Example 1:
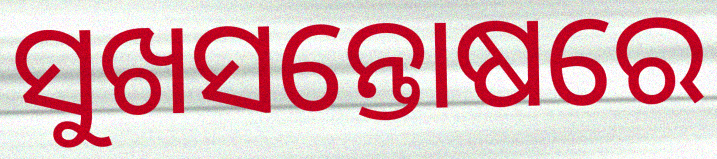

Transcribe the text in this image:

ସୁଖସନ୍ତୋଷରେ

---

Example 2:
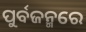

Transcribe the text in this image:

ପୁର୍ବଜନ୍ମରେ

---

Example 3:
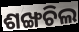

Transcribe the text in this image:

ଶଙ୍ଖଚିଲ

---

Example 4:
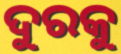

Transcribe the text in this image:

ଦୁରକୁ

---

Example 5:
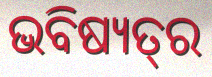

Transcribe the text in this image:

ଭବିଷ୍ୟତ୍‌ର